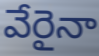
వేరైనా